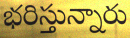
భరిస్తున్నారు